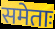
समेताः